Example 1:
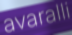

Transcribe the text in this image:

avaralli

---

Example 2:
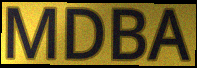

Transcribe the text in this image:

MDBA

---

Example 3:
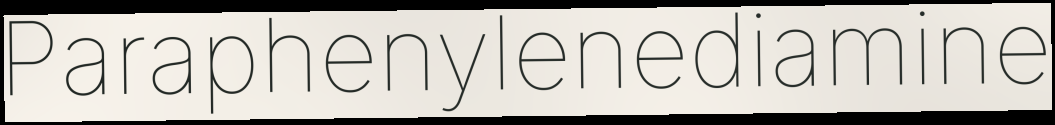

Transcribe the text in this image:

Paraphenylenediamine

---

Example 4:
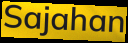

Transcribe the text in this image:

Sajahan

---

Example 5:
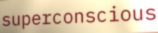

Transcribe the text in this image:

superconscious